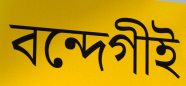
বন্দেগীই